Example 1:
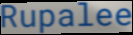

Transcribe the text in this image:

Rupalee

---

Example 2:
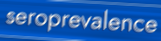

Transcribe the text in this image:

seroprevalence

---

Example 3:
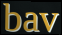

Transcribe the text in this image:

bav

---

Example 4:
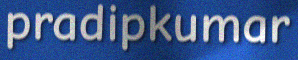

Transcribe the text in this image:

pradipkumar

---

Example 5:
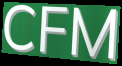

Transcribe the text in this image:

CFM